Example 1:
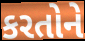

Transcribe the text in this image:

કરતોને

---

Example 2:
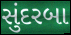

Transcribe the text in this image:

સુંદરબા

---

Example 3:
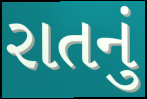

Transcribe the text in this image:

રાતનું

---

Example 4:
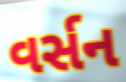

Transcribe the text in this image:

વર્સન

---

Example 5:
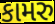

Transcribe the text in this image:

કામરુ